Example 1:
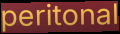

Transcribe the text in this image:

peritonal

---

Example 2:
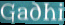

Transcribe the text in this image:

Gadhi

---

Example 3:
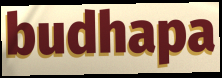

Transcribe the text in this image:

budhapa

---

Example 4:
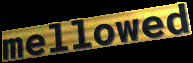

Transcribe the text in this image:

mellowed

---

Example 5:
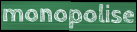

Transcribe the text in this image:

monopolise